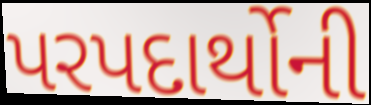
પરપદાર્થોની